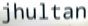
jhultan